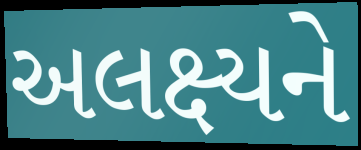
અલક્ષ્યને